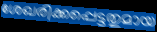
ശേഖരിക്കപ്പെട്ടതുമായ